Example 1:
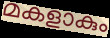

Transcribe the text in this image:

മകളാകും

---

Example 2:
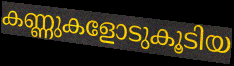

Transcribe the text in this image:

കണ്ണുകളോടുകൂടിയ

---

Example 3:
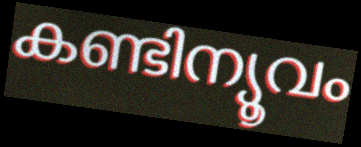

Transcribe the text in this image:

കണ്ടിന്യൂവം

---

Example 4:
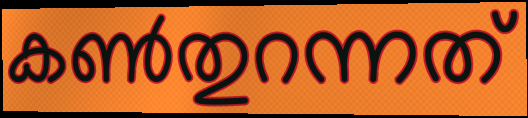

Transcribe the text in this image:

കൺതുറന്നത്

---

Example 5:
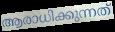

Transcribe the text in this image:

ആരാധിക്കുന്നത്